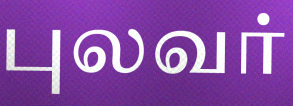
புலவர்